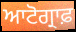
ਆਟੋਗ੍ਰਾਫ਼